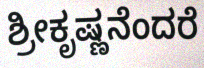
ಶ್ರೀಕೃಷ್ಣನೆಂದರೆ